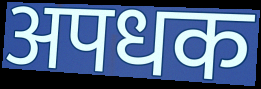
अपधक